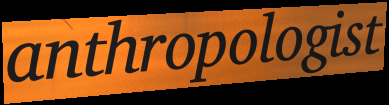
anthropologist